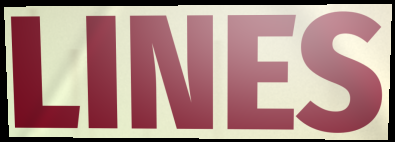
LINES